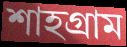
শাহগ্রাম